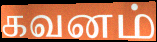
கவனம்